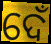
ଦେଁ